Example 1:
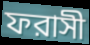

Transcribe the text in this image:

ফরাসী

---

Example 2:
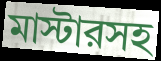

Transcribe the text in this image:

মাস্টারসহ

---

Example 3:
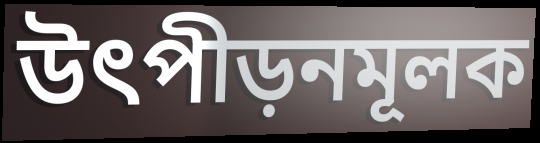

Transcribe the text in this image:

উৎপীড়নমূলক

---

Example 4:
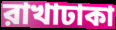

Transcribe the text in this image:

রাখাঢাকা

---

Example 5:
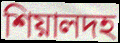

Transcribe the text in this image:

শিয়ালদহ